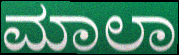
ಮಾಲಾ